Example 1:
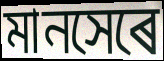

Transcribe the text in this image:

মানসেৰে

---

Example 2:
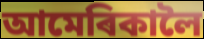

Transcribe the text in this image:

আমেৰিকালৈ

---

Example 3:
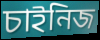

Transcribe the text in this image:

চাইনিজ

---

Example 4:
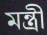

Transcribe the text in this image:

মন্ত্ৰী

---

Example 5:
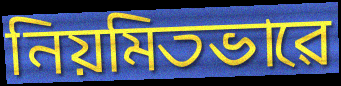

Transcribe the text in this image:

নিয়মিতভাৱে